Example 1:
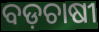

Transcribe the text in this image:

ବଡ଼ଚାଷୀ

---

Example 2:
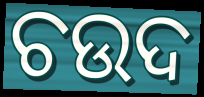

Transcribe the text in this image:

ଚଉଦ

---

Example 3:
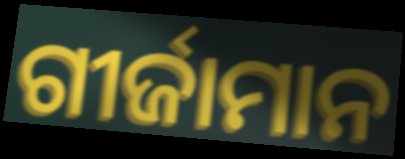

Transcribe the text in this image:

ଗୀର୍ଜାମାନ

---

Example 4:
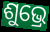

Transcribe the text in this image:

ଶୁଭ୍ରେ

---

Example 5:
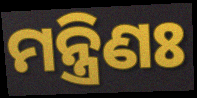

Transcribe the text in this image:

ମନ୍ତ୍ରିଣଃ